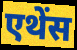
एथेंस